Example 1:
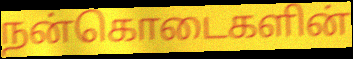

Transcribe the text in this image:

நன்கொடைகளின்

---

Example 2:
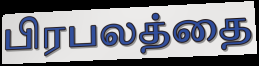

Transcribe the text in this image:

பிரபலத்தை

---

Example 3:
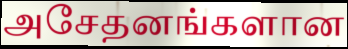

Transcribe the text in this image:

அசேதனங்களான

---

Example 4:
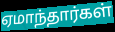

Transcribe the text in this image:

ஏமாந்தார்கள்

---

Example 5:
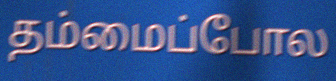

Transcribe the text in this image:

தம்மைப்போல